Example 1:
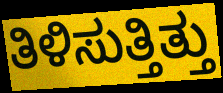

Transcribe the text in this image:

ತಿಳಿಸುತ್ತಿತ್ತು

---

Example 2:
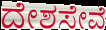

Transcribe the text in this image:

ದೇಶಸೇವೆ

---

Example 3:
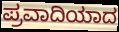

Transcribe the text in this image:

ಪ್ರವಾದಿಯಾದ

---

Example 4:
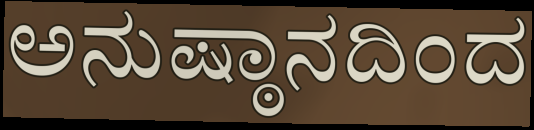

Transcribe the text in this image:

ಅನುಷ್ಠಾನದಿಂದ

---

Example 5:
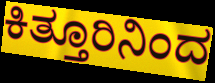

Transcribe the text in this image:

ಕಿತ್ತೂರಿನಿಂದ